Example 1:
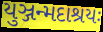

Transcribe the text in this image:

યુઞ્જન્મદાશ્રયઃ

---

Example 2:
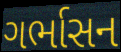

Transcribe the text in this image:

ગર્ભાસન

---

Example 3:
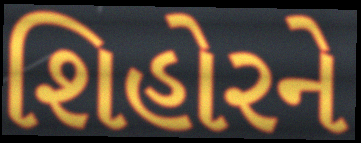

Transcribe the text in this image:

શિહોરને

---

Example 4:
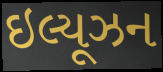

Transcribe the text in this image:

ઇલ્યૂઝન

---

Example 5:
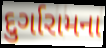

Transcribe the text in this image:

દુર્ગારામના